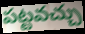
పట్టవచ్చు